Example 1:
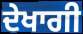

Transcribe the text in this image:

ਦੇਖਾਗੀ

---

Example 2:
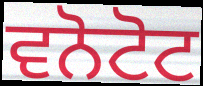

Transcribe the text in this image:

ਵਨੋਟੋਟ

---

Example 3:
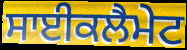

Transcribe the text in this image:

ਸਾਈਕਲੈਮੇਟ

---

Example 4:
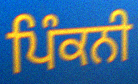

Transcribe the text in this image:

ਪਿੰਕਨੀ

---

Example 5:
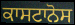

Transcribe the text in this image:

ਕਾਸਟਾਨੋਸ